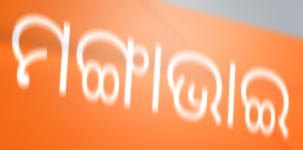
ମଙ୍ଗାଭାଇ